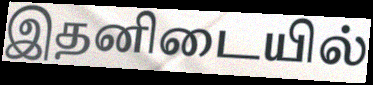
இதனிடையில்